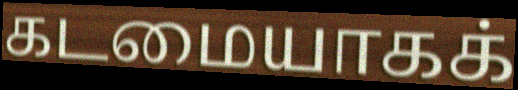
கடமையாகக்